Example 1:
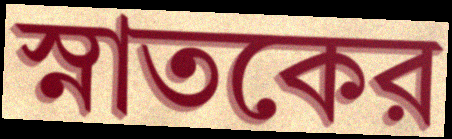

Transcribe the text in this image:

স্নাতকের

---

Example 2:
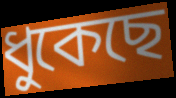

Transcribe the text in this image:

ধুকেছে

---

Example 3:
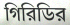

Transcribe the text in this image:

গিরিডির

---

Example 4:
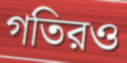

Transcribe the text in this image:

গতিরও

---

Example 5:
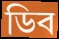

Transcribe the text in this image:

ডিব